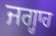
ਜਗ੍ਹਾਹ